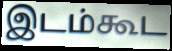
இடம்கூட